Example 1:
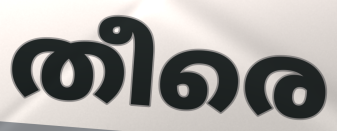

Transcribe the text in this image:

തീരെ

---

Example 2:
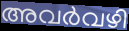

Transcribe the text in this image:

അവർവഴി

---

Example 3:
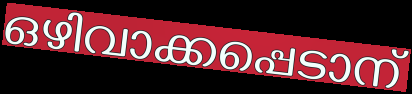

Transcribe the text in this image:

ഒഴിവാക്കപ്പെടാന്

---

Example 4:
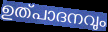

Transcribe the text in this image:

ഉത്പാദനവും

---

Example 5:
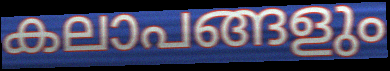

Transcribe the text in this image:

കലാപങ്ങളും